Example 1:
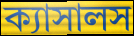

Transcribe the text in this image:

ক্যাসালস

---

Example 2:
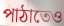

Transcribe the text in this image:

পাঠাতেও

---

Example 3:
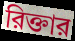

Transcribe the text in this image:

রিক্তার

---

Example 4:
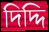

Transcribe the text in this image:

দিদ্দি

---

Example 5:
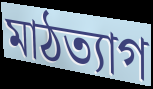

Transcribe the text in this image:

মাঠত্যাগ